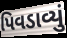
પિવડાવ્યું